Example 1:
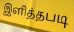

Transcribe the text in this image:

இளித்தபடி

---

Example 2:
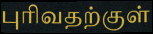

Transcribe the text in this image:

புரிவதற்குள்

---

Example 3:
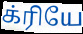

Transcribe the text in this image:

க்ரியே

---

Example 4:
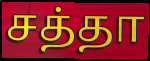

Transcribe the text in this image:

சத்தா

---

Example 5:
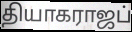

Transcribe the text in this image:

தியாகராஜப்